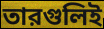
তারগুলিই